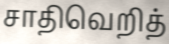
சாதிவெறித்